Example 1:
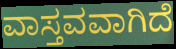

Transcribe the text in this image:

ವಾಸ್ತವವಾಗಿದೆ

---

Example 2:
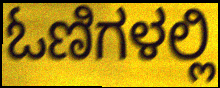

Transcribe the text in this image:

ಓಣಿಗಳಲ್ಲಿ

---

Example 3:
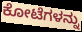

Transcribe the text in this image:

ಕೋಟೆಗಳನ್ನು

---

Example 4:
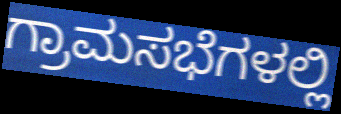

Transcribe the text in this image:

ಗ್ರಾಮಸಭೆಗಳಲ್ಲಿ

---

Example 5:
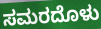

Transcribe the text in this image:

ಸಮರದೊಳು